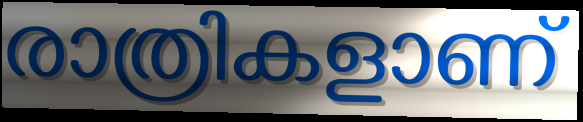
രാത്രികളാണ്